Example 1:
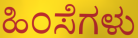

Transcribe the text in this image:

ಹಿಂಸೆಗಳು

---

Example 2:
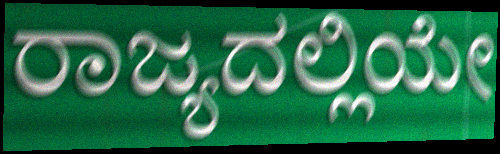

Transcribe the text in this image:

ರಾಜ್ಯದಲ್ಲಿಯೇ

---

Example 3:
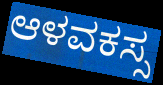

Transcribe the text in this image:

ಆಳವಕಸ್ಸ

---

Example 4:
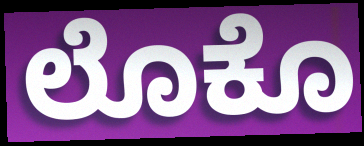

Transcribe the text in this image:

ಲೊಕೊ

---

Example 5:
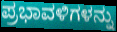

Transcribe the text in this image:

ಪ್ರಭಾವಳಿಗಳನ್ನು